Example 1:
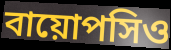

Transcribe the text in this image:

বায়োপসিও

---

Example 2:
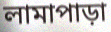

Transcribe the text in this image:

লামাপাড়া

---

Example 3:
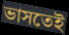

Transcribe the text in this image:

ভাসতেই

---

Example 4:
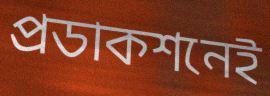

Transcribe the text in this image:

প্রডাকশনেই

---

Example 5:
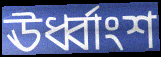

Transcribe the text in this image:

ঊর্ধ্বাংশ